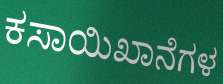
ಕಸಾಯಿಖಾನೆಗಳ